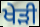
ਖੇੜੀ